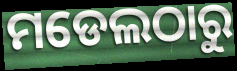
ମଡେଲଠାରୁ